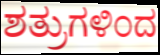
ಶತ್ರುಗಳಿಂದ